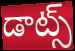
డాట్స్